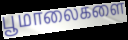
பூமாலைகளை